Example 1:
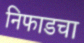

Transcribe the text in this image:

निफाडचा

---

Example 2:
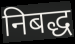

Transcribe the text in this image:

निबद्ध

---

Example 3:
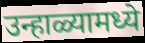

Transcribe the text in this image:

उन्हाळ्यामध्ये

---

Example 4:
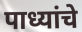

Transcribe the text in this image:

पाध्यांचे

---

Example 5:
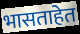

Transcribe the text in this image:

भासताहेत